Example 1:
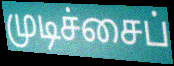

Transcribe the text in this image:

முடிச்சைப்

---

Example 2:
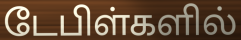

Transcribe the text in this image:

டேபிள்களில்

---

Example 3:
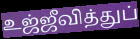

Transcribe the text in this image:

உஜ்ஜீவித்துப்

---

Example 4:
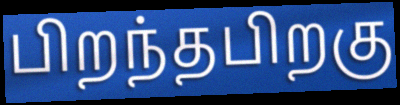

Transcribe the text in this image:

பிறந்தபிறகு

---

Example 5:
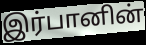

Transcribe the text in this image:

இர்பானின்